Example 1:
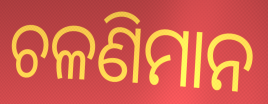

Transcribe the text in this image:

ଚଳଣିମାନ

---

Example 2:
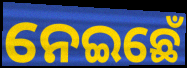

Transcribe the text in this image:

ନେଇଛେଁ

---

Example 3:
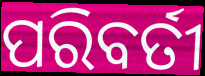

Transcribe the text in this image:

ପରିବର୍ତୀ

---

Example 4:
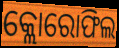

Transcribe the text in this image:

କ୍ଲୋରୋଫିଲ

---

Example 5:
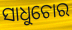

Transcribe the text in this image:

ସାଧୁଚୋର